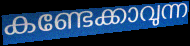
കണ്ടേക്കാവുന്ന